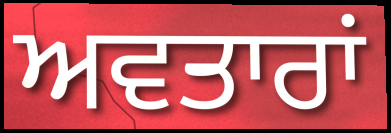
ਅਵਤਾਰਾਂ